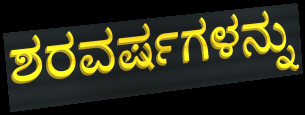
ಶರವರ್ಷಗಳನ್ನು